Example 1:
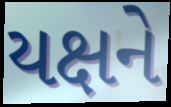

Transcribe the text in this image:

યક્ષને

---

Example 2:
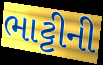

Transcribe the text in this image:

ભાટ્ટીની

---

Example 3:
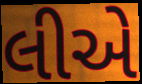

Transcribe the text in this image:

લીએ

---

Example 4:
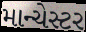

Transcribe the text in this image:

માન્ચેસ્ટર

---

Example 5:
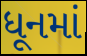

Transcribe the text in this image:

ધૂનમાં